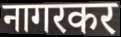
नागरकर